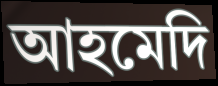
আহমেদি